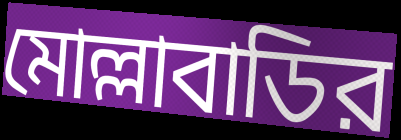
মোল্লাবাডির